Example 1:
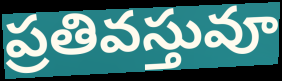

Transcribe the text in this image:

ప్రతివస్తువూ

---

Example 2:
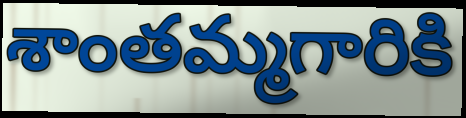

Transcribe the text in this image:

శాంతమ్మగారికి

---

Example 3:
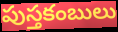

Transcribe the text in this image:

పుస్తకంబులు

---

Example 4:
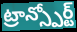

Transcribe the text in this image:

ట్రాన్స్పోర్ట్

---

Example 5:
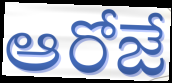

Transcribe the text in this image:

ఆరోజే